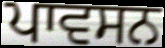
ਪਾਵਸਨ